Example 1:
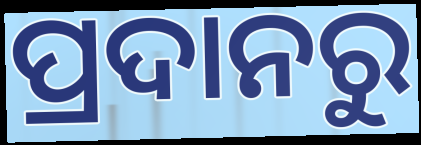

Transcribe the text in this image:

ପ୍ରଦାନରୁ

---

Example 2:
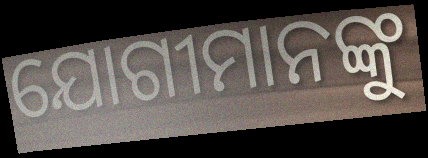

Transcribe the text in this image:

ଯୋଗୀମାନଙ୍କୁ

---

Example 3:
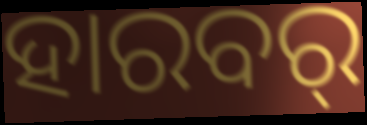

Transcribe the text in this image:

ହାରବର୍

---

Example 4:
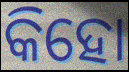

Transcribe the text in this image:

କିହୋ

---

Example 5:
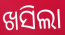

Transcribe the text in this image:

ଖସିଲା